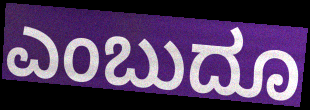
ಎಂಬುದೂ